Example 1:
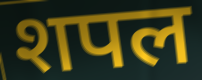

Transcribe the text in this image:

शपल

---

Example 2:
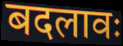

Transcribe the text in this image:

बदलावः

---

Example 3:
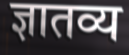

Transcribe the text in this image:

ज्ञातव्य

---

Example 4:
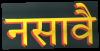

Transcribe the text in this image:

नसावै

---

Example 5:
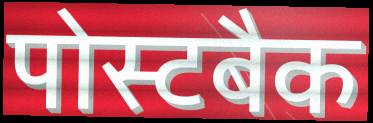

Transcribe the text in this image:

पोस्टबैक